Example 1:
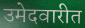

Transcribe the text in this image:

उमेदवारीत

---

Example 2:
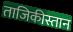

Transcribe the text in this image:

ताजिकीस्तान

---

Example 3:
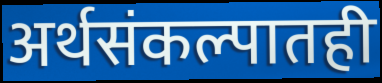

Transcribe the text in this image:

अर्थसंकल्पातही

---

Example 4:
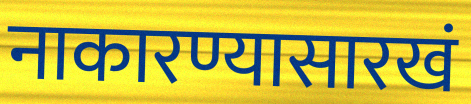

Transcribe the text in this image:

नाकारण्यासारखं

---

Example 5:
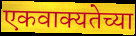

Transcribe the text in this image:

एकवाक्यतेच्या